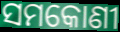
ସମକୋଣୀ